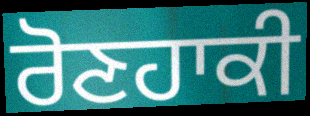
ਰੋਣਹਾਕੀ